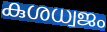
കുശധ്വജം